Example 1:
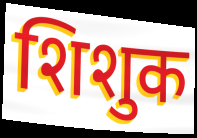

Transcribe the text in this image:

शिशुक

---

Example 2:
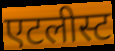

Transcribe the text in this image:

एटलीस्ट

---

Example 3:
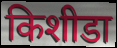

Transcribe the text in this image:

किशीडा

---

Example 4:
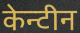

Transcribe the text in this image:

केन्टीन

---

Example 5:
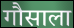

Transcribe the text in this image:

गौसाला